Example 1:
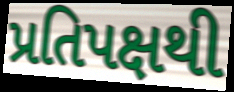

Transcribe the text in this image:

પ્રતિપક્ષથી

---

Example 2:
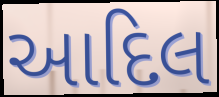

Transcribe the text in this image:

આદિલ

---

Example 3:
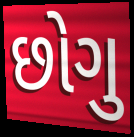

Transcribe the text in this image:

છોગુ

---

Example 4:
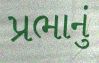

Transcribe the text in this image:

પ્રભાનું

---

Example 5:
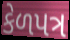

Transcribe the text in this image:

કેળપત્ર